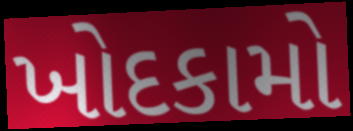
ખોદકામો